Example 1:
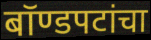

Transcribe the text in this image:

बॉण्डपटांचा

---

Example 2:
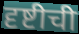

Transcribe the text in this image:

दृष्टीची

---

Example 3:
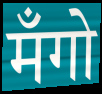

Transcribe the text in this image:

मँगो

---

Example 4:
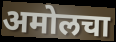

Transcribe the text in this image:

अमोलचा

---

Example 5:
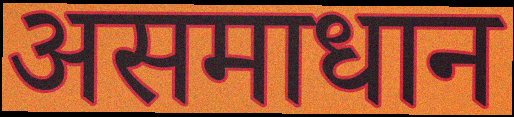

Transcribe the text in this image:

असमाधान